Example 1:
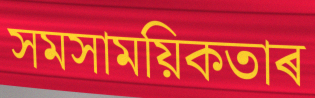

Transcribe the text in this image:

সমসাময়িকতাৰ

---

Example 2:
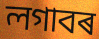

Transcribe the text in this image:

লগাবৰ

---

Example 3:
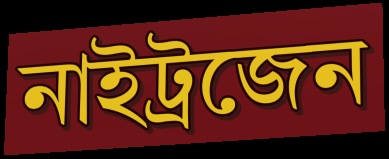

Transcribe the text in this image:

নাইট্ৰজেন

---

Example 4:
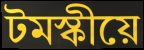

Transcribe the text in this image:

টমস্কীয়ে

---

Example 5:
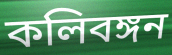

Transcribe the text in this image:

কলিবঙ্গন